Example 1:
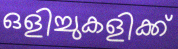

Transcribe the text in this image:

ഒളിച്ചുകളിക്ക്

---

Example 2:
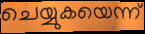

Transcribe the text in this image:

ചെയ്യുകയെന്ന്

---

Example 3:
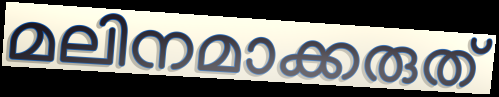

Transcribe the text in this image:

മലിനമാക്കരുത്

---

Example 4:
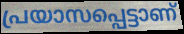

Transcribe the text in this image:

പ്രയാസപ്പെട്ടാണ്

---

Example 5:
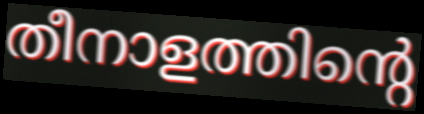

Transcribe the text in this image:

തീനാളത്തിന്റെ